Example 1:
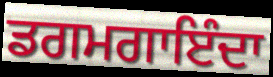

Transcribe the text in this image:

ਡਗਮਗਾਇੰਦਾ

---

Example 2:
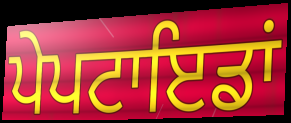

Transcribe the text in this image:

ਪੇਪਟਾਇਡਾਂ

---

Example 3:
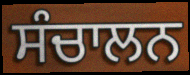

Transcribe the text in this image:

ਸੰਚਾਲਨ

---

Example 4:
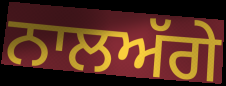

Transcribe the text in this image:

ਨਾਲਅੱਗੇ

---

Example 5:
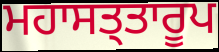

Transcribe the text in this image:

ਮਹਾਸਤ੍ਤਾਰੂਪ